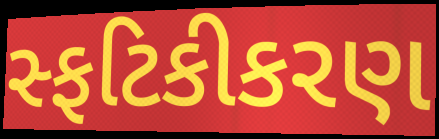
સ્ફટિકીકરણ